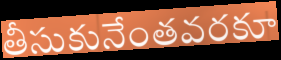
తీసుకునేంతవరకూ